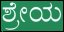
ಶ್ರೇಯ